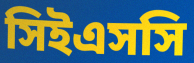
সিইএসসি